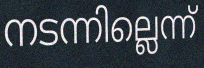
നടന്നില്ലെന്ന്